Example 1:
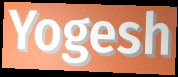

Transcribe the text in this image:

Yogesh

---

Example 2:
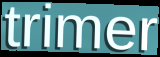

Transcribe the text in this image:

trimer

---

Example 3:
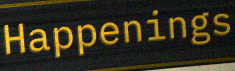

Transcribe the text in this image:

Happenings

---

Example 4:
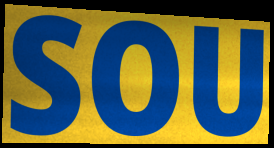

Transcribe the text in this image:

SOU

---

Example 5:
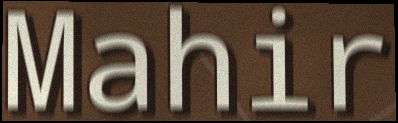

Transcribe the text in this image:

Mahir